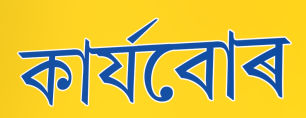
কাৰ্যবোৰ